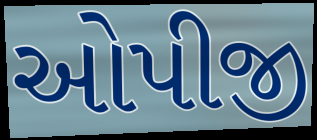
ઓપીજી